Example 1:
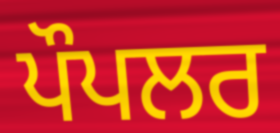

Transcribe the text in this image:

ਪੌਪਲਰ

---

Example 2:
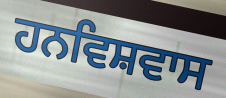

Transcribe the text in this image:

ਹਨਵਿਸ਼ਵਾਸ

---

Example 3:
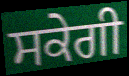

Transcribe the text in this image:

ਸਕੇਗੀ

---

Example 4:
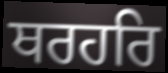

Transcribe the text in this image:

ਥਰਹਰਿ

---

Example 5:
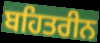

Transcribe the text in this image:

ਬਹਿਤਰੀਨ